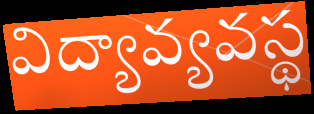
విద్యావ్యవస్థ